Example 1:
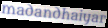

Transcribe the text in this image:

madandhaiyar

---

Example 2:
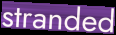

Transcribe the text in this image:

stranded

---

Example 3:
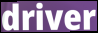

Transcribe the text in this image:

driver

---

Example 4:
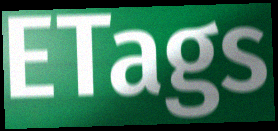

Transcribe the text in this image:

ETags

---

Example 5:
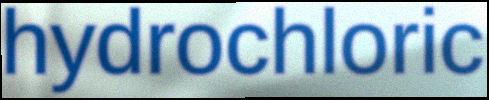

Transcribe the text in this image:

hydrochloric